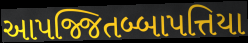
આપજ્જિતબ્બાપત્તિયા